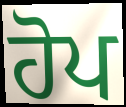
ਹੋਪ